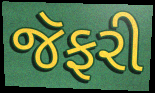
જૅફરી